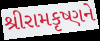
શ્રીરામકૃષ્ણને